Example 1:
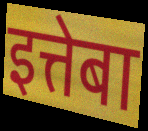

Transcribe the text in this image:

इत्तेबा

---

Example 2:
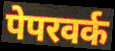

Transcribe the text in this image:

पेपरवर्क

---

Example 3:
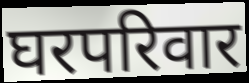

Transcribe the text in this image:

घरपरिवार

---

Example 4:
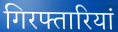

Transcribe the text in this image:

गिरफ्तारियां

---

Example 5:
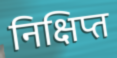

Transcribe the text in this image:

निक्षिप्त